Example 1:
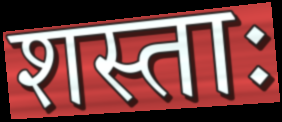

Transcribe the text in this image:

शस्ताः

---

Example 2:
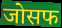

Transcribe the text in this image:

जोसफ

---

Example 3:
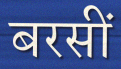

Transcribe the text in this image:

बरसीं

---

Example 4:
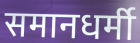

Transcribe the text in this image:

समानधर्मी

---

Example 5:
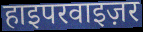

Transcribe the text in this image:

हाइपरवाइज़र